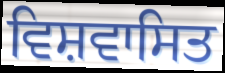
ਵਿਸ਼ਵਾਸਿਤ